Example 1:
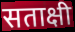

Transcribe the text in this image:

सताक्षी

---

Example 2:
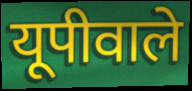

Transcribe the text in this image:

यूपीवाले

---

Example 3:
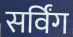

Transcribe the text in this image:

सर्विंग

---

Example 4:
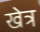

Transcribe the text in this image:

खेत्र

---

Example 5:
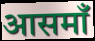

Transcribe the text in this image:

आसमाँ